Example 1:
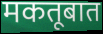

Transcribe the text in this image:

मकतूबात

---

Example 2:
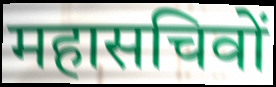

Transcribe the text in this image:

महासचिवों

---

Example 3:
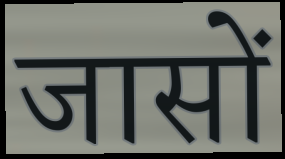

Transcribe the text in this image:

जासों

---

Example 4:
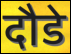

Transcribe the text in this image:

दौडे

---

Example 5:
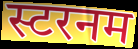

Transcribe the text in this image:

स्टरनम